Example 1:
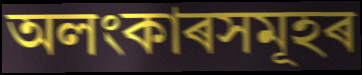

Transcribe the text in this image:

অলংকাৰসমূহৰ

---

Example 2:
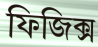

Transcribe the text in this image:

ফিজিক্স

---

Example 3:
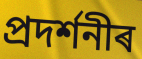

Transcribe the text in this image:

প্ৰদৰ্শনীৰ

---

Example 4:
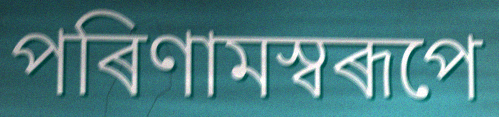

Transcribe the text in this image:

পৰিণামস্বৰূপে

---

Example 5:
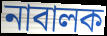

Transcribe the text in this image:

নাবালক